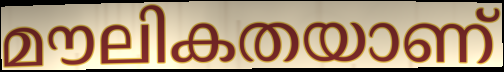
മൗലികതയാണ്